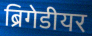
ब्रिगेडीयर